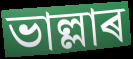
ভাল্লাৰ